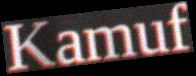
Kamuf